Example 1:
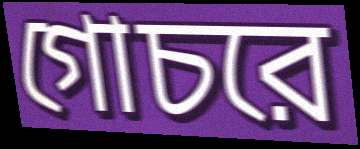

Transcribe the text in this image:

গোচরে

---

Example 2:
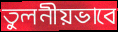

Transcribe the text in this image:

তুলনীয়ভাবে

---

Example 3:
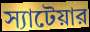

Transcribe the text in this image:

স্যাটেয়ার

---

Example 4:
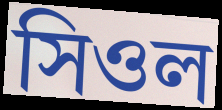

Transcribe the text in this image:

সিওল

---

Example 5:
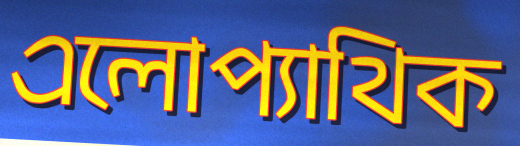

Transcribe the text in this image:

এলোপ্যাথিক